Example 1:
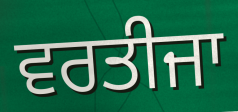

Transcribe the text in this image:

ਵਰਤੀਜਾ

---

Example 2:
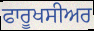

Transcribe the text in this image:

ਫਾਰੂਖਸੀਅਰ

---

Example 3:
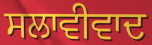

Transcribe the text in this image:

ਸਲਾਵੀਵਾਦ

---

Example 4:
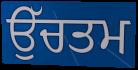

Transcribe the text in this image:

ਉੱਚਤਮ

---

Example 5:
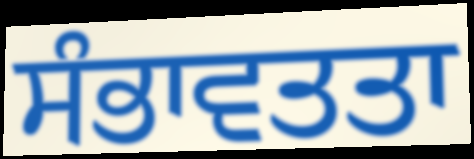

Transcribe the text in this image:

ਸੰਭਾਵਤਤਾ